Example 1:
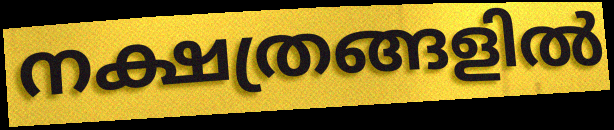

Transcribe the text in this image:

നക്ഷത്രങ്ങളിൽ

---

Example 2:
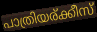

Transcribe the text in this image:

പാത്രിയര്ക്കീസ്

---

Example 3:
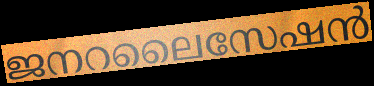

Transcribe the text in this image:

ജനറലൈസേഷൻ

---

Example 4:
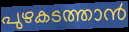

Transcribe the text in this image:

പുഴകടത്താൻ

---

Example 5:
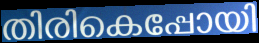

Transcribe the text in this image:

തിരികെപ്പോയി